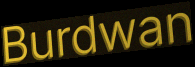
Burdwan